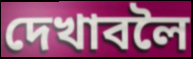
দেখাবলৈ